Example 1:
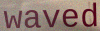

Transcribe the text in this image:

waved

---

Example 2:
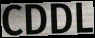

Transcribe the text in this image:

CDDL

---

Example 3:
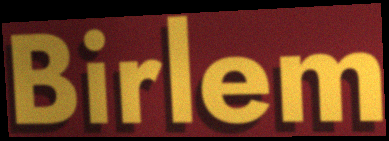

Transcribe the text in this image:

Birlem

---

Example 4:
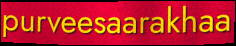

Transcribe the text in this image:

purveesaarakhaa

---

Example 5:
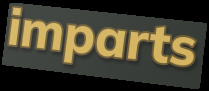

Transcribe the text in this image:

imparts